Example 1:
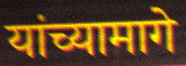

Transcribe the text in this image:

यांच्यामागे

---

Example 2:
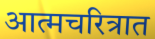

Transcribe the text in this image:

आत्मचरित्रात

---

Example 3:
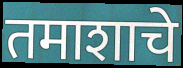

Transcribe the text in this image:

तमाशाचे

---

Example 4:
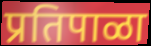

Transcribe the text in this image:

प्रतिपाळा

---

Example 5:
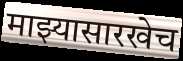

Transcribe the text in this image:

माझ्यासारखेच